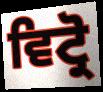
ਵਿਟ੍ਰੋ